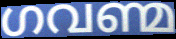
ഗവണ്മ